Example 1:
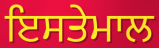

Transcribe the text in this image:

ਇਸਤੇਮਾਲ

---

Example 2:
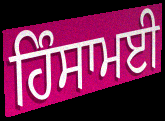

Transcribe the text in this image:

ਹਿੰਸਾਮਈ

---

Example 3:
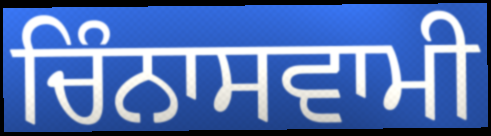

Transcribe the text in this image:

ਚਿੰਨਾਸਵਾਮੀ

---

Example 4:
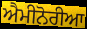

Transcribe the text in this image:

ਐਮੀਨੋਰੀਆ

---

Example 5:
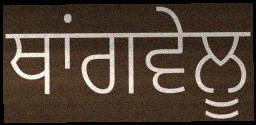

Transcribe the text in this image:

ਥਾਂਗਵੇਲੂ